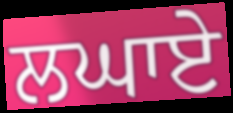
ਲਘਾਏ